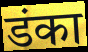
डंका